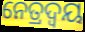
ନେତ୍ରଦ୍ଵୟ